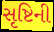
સૃષ્ટિની